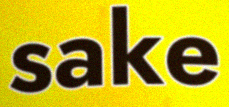
sake